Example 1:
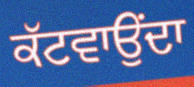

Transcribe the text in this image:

ਕੱਟਵਾਉਂਦਾ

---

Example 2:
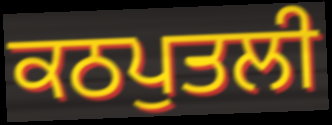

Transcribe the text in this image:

ਕਠਪੁਤਲੀ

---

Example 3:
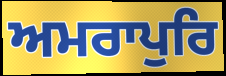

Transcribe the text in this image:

ਅਮਰਾਪੁਰਿ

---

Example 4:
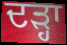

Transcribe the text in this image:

ਦੜ੍ਹਾ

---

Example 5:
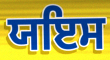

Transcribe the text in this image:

ਯਇਸ